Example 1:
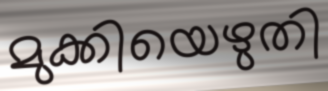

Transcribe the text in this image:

മുക്കിയെഴുതി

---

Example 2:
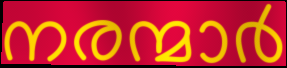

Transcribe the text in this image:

നരന്മാർ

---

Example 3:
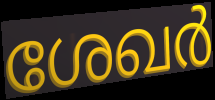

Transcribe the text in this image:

ശേഖർ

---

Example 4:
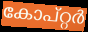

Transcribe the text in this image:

കോപ്റ്റർ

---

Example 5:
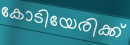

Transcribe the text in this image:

കോടിയേരിക്ക്